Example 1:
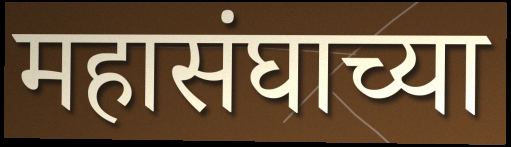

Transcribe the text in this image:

महासंघाच्या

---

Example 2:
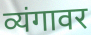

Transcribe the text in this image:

व्यंगावर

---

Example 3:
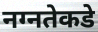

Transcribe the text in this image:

नग्नतेकडे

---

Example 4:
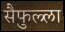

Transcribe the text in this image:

सैफुल्ला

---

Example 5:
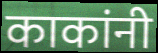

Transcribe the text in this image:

काकांनी